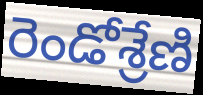
రెండోశ్రేణి